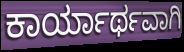
ಕಾರ್ಯಾರ್ಥವಾಗಿ